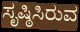
ಸೃಷ್ಠಿಸಿರುವ